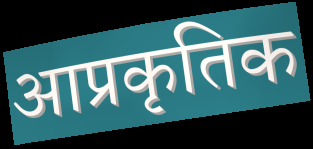
आप्रकृतिक